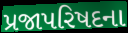
પ્રજાપરિષદના